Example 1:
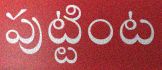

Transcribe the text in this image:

పుట్టింట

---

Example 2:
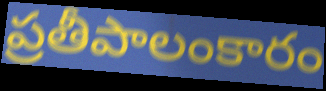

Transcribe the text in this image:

ప్రతీపాలంకారం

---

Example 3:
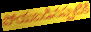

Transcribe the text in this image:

పోయబడినప్పటికి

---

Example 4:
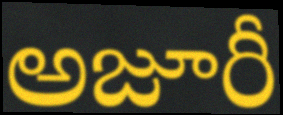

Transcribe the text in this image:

అజూరీ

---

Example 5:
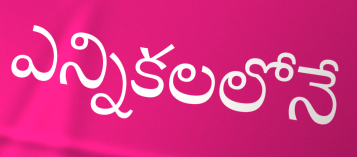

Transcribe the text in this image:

ఎన్నికలలోనే